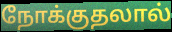
நோக்குதலால்